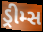
ડ્રીમ્સ